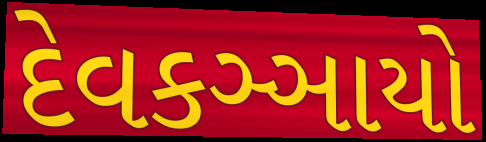
દેવકઞ્ઞાયો